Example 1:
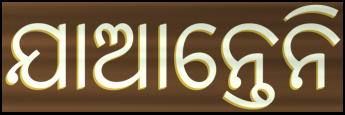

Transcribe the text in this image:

ଯାଆନ୍ତେନି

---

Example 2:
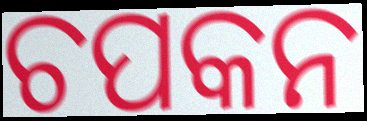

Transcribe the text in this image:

ଚପକନ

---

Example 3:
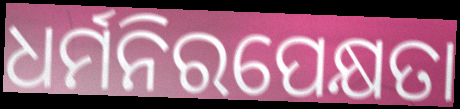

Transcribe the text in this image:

ଧର୍ମନିରପେକ୍ଷତା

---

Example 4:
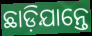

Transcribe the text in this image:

ଛାଡ଼ିଯାନ୍ତେ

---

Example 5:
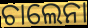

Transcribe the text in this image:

ଚାଲେନା